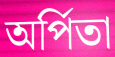
অর্পিতা